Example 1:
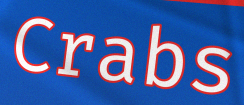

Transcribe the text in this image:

Crabs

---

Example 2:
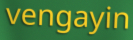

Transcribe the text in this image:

vengayin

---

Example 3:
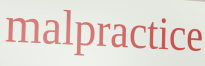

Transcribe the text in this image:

malpractice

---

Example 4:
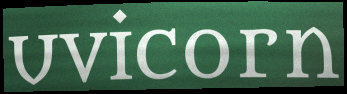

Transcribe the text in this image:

uvicorn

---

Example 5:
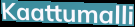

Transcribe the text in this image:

Kaattumalli